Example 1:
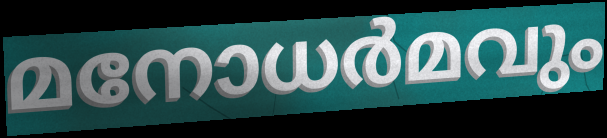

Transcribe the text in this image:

മനോധർമവും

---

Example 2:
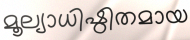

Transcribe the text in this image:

മൂല്യാധിഷ്ഠിതമായ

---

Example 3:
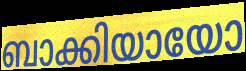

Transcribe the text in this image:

ബാക്കിയായോ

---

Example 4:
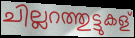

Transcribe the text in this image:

ചില്ലറത്തുട്ടുകള്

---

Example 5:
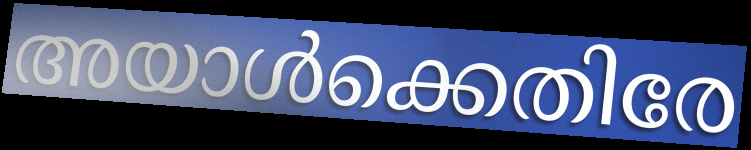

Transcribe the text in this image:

അയാൾക്കെതിരേ